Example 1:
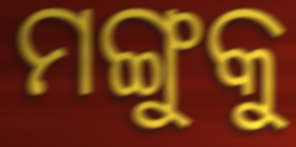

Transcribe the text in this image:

ମଙ୍ଗୁକୁ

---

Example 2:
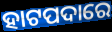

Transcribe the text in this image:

ହାଟପଦାରେ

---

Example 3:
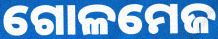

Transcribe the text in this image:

ଗୋଳମେଜ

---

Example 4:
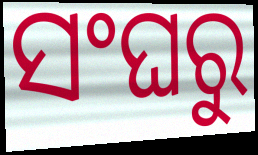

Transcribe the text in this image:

ସଂଘରୁ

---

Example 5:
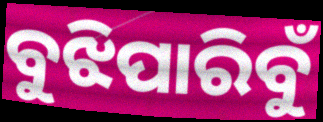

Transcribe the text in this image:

ବୁଝିପାରିବୁଁ